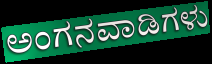
ಅಂಗನವಾಡಿಗಳು